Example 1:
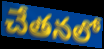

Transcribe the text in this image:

చేతనలో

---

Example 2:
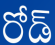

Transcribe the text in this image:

రోడ్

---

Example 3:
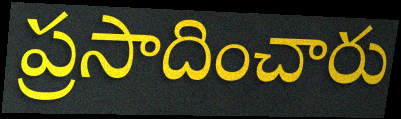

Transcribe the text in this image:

ప్రసాదించారు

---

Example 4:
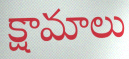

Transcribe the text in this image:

క్షామాలు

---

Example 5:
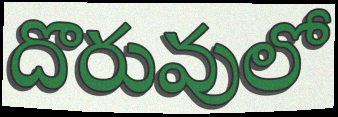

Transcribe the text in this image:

దొరువులో